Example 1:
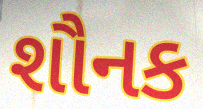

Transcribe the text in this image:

શૌનક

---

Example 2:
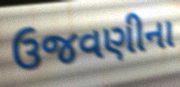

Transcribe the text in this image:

ઉજવણીના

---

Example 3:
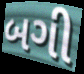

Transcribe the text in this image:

બગી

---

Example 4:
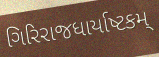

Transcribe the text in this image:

ગિરિરાજધાર્યાષ્ટકમ્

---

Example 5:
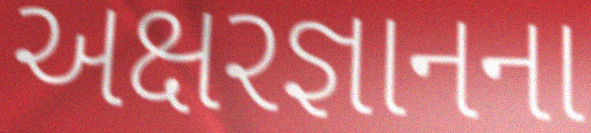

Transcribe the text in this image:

અક્ષરજ્ઞાનના